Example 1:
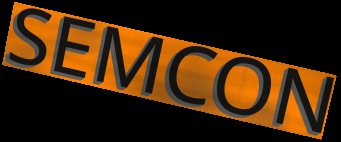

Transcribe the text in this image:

SEMCON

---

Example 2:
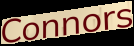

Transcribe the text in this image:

Connors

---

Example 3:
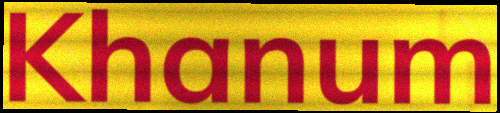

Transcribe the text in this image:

Khanum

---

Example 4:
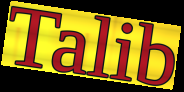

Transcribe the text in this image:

Talib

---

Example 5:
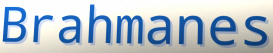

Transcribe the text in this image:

Brahmanes